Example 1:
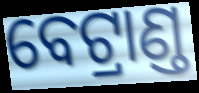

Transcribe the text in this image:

ବେଟ୍ରାଣ୍ଡ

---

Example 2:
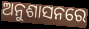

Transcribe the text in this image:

ଅନୁଶାସନରେ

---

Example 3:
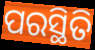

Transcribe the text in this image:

ପରସ୍ଥିତି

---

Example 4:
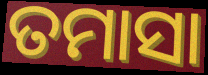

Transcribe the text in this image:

ତମାସା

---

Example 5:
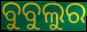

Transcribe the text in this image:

ବୁବୁଲୁର